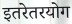
इतरेतरयोग